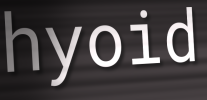
hyoid